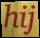
hij